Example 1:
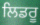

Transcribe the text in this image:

ਲਿਡਰੂ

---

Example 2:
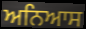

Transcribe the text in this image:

ਅਨਿਆਸ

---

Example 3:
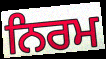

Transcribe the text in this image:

ਨਿਰਮ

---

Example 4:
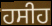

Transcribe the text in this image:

ਹਸੀਹ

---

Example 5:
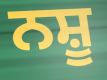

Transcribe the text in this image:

ਨਸ਼ੂ